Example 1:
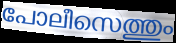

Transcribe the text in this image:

പോലീസെത്തും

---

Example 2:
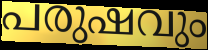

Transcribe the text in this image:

പരുഷവും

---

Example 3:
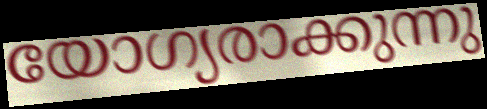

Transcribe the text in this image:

യോഗ്യരാക്കുന്നു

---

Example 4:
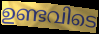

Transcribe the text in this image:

ഉണ്ടവിടെ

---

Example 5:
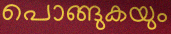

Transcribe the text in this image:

പൊങ്ങുകയും